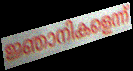
ജ്ഞാനികളെന്ന്